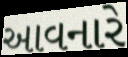
આવનારે